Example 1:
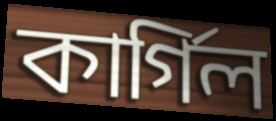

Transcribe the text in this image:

কার্গিল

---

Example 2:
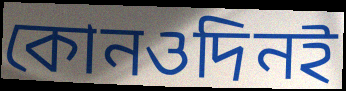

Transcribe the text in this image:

কোনওদিনই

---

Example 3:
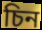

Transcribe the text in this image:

চিন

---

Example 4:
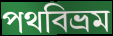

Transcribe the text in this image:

পথবিভ্রম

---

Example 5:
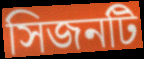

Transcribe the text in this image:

সিজনটি